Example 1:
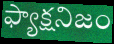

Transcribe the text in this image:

ఫ్యాక్షనిజం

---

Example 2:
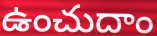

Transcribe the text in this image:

ఉంచుదాం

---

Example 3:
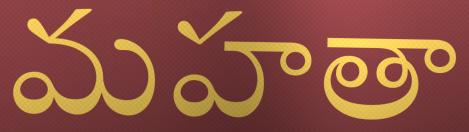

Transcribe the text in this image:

మహతా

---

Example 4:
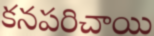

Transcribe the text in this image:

కనపరిచాయి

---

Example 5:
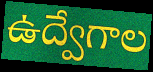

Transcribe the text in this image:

ఉద్వేగాల